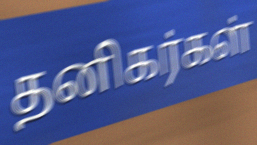
தனிகர்கள்